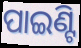
ପାଇଣ୍ଟି